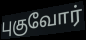
புகுவோர்